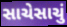
સાચેસાચું